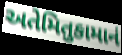
અતેમિતુકામાનં